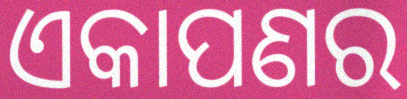
ଏକାପଣର